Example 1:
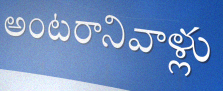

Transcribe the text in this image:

అంటరానివాళ్లు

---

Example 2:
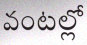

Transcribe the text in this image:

వంటల్లో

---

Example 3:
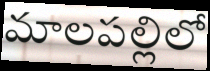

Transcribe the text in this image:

మాలపల్లిలో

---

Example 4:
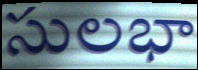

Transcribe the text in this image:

సులభా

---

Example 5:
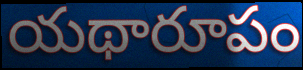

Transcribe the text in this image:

యథారూపం